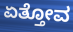
ಏತ್ತೋವ